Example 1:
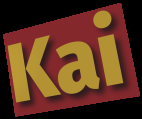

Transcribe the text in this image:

Kai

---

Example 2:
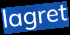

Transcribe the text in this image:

lagret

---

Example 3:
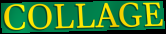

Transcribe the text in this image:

COLLAGE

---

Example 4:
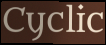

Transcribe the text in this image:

Cyclic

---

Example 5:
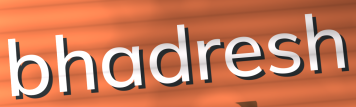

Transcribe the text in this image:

bhadresh